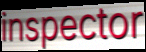
inspector